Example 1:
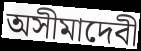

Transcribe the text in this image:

অসীমাদেবী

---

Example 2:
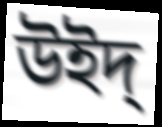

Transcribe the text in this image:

উইদ্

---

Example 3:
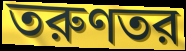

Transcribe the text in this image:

তরুণতর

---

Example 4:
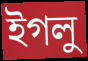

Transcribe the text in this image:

ইগলু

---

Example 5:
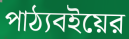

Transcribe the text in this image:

পাঠ্যবইয়ের